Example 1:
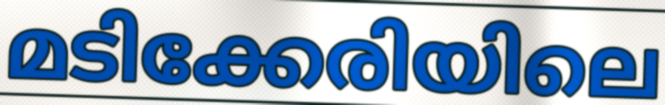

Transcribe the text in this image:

മടിക്കേരിയിലെ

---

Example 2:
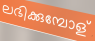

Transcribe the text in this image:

ലഭിക്കുമ്പോള്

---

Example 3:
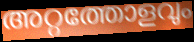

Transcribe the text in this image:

അറ്റത്തോളവും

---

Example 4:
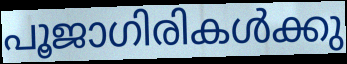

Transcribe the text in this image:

പൂജാഗിരികൾക്കു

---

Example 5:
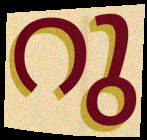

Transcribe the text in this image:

റു